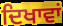
ਦਿਖਾਵਾਂ